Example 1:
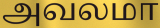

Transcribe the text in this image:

அவலமா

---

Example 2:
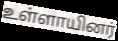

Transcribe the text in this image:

உள்ளாயினர்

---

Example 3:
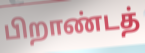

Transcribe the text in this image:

பிறாண்டத்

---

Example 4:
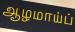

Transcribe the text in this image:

ஆழமாய்ப்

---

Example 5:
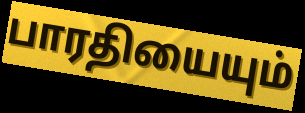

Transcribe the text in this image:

பாரதியையும்